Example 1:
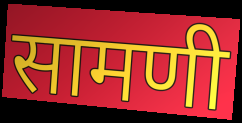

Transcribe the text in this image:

सामणी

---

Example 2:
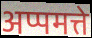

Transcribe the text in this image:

अप्पमत्ते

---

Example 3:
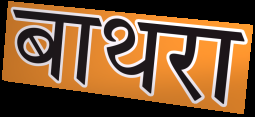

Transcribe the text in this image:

बाथरा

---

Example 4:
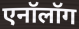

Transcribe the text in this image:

एनॉलॉग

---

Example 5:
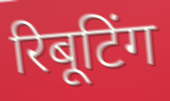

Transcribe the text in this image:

रिबूटिंग